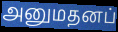
அனுமதனப்